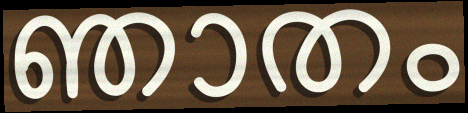
ഞാതം